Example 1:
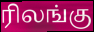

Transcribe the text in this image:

ரிலங்கு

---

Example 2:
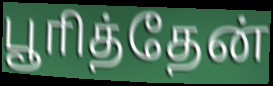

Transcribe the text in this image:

பூரித்தேன்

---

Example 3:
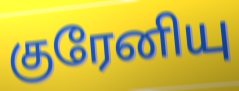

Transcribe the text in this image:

குரேனியு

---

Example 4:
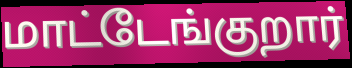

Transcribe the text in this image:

மாட்டேங்குறார்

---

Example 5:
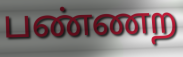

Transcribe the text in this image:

பண்ணற